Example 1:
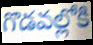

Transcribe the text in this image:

గొడవల్లోకి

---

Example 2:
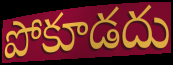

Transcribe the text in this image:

పోకూడదు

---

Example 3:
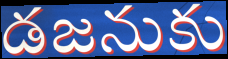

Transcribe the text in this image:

డజనుకు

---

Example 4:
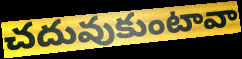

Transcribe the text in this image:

చదువుకుంటావా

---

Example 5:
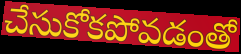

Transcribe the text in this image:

చేసుకోకపోవడంతో